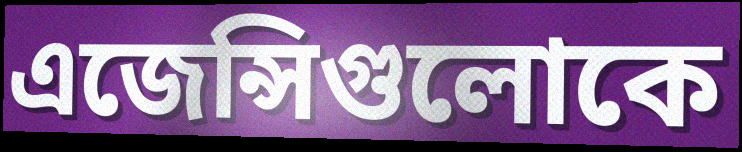
এজেন্সিগুলোকে